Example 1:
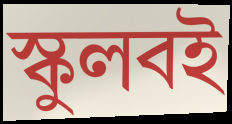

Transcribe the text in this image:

স্কুলবই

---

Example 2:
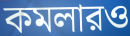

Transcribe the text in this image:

কমলারও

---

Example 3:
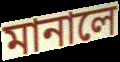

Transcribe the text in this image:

মানালে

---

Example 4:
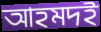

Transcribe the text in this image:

আহমদই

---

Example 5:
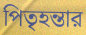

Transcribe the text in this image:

পিতৃহন্তার